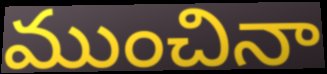
ముంచినా